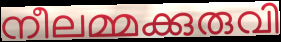
നീലമ്മക്കുരുവി